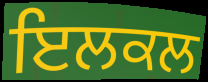
ਇਲਕਲ